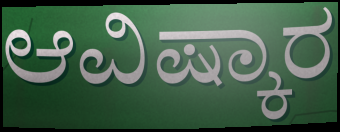
ಆವಿಷ್ಕಾರ